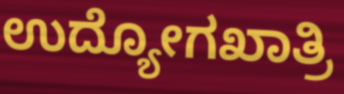
ಉದ್ಯೋಗಖಾತ್ರಿ